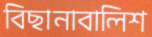
বিছানাবালিশ